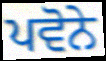
ਪਵੋਨੇ